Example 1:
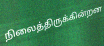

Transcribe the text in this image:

நிலைத்திருக்கின்றன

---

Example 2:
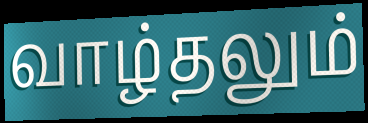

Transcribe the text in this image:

வாழ்தலும்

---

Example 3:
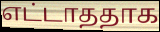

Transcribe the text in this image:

எட்டாததாக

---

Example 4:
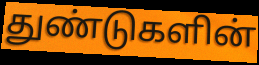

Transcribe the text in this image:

துண்டுகளின்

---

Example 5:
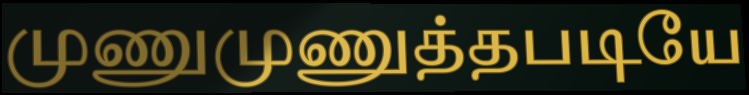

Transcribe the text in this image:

முணுமுணுத்தபடியே